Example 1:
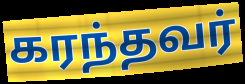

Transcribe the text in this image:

கரந்தவர்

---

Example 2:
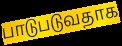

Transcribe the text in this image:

பாடுபடுவதாக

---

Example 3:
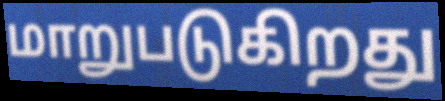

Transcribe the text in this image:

மாறுபடுகிறது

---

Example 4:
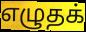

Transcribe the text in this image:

எழுதக்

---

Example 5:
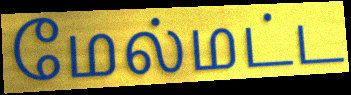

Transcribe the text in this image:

மேல்மட்ட